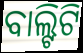
ବାଲ୍ଟିଟି